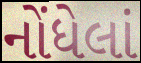
નોંધેલાં